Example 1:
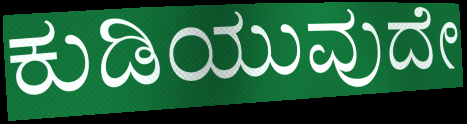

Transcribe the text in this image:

ಕುಡಿಯುವುದೇ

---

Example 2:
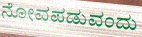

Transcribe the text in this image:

ನೋವಪಡುವಂದು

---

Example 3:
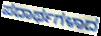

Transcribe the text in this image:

ಪದಾರ್ಥಗಳಾದ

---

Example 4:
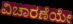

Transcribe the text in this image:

ವಿಚಾರಣೆಯೇ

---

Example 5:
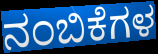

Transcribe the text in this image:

ನಂಬಿಕೆಗಳ